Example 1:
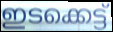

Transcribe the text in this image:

ഇടക്കെട്ട്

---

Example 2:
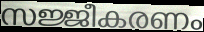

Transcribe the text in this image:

സജ്ജീകരണം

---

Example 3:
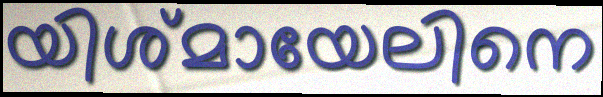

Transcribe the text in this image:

യിശ്മായേലിനെ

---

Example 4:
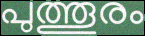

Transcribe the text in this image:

പുത്തൂരം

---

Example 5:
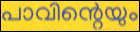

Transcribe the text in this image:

പാവിന്റെയും